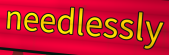
needlessly